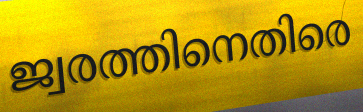
ജ്വരത്തിനെതിരെ